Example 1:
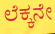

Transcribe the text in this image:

ಲೆಕ್ಕನೇ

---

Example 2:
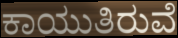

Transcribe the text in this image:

ಕಾಯುತಿರುವೆ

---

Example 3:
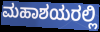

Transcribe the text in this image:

ಮಹಾಶಯರಲ್ಲಿ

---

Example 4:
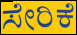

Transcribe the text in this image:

ಸೇರಿಕೆ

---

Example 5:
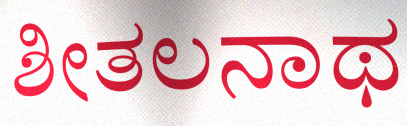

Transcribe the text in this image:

ಶೀತಲನಾಥ